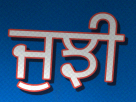
ਜੁਝੀ